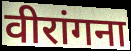
वीरांगना